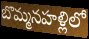
బొమ్మనహళ్లిలో